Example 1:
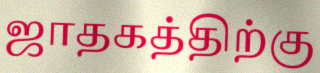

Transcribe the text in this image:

ஜாதகத்திற்கு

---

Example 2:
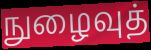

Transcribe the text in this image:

நுழைவுத்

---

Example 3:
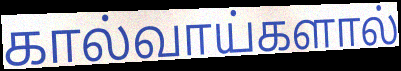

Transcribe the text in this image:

கால்வாய்களால்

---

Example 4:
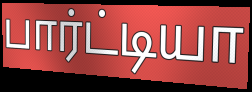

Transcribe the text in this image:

பார்ட்டியா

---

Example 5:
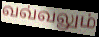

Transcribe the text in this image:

வவ்வலும்